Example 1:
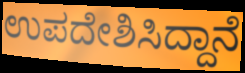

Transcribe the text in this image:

ಉಪದೇಶಿಸಿದ್ದಾನೆ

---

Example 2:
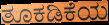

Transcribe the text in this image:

ತೂಕಡಿಕೆಯ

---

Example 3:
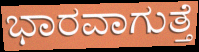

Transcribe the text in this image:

ಭಾರವಾಗುತ್ತೆ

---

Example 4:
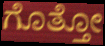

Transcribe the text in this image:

ಗೊತ್ತೋ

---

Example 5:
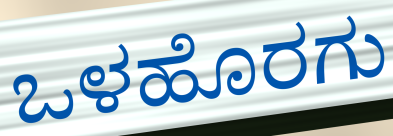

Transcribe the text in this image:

ಒಳಹೊರಗು